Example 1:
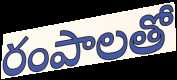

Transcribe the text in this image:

రంపాలతో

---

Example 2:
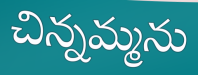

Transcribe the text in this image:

చిన్నమ్మను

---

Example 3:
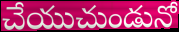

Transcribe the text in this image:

చేయుచుండునో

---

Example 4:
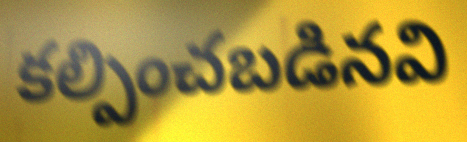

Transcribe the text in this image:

కల్పించబడినవి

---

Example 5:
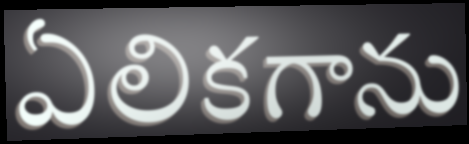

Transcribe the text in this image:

ఏలికగాను